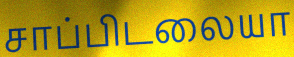
சாப்பிடலையா